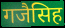
गजैसिह